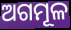
ଅଗମୂଳ